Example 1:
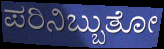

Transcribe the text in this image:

ಪರಿನಿಬ್ಬುತೋ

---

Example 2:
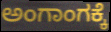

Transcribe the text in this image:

ಅಂಗಾಂಗಕ್ಕೆ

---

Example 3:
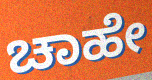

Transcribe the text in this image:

ಚಾಹೇ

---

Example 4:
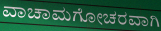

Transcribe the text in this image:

ವಾಚಾಮಗೋಚರವಾಗಿ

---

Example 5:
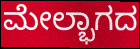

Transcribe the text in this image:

ಮೇಲ್ಭಾಗದ